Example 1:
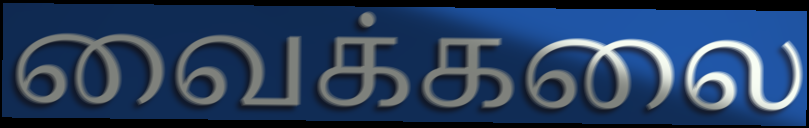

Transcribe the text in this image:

வைக்கலை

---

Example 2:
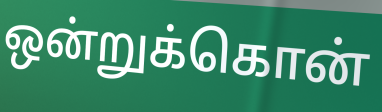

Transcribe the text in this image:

ஒன்றுக்கொன்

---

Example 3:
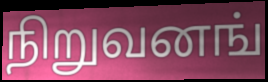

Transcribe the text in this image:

நிறுவனங்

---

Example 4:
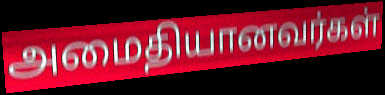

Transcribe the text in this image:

அமைதியானவர்கள்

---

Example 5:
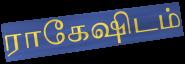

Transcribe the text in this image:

ராகேஷிடம்